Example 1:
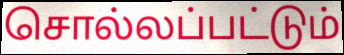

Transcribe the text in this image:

சொல்லப்பட்டும்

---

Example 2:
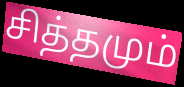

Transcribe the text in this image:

சித்தமும்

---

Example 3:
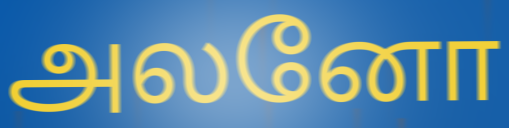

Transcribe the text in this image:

அலனோ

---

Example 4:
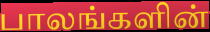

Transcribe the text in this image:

பாலங்களின்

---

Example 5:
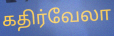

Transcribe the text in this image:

கதிர்வேலா